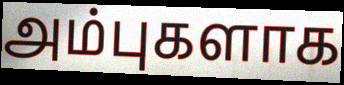
அம்புகளாக